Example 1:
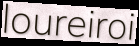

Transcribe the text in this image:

loureiroi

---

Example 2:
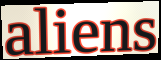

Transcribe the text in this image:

aliens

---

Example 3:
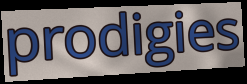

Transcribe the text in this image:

prodigies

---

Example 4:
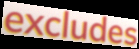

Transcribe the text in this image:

excludes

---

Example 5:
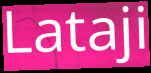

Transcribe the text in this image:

Lataji